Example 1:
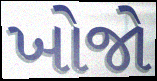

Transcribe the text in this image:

ખોજો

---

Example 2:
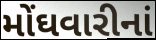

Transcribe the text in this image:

મોંઘવારીનાં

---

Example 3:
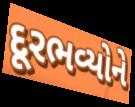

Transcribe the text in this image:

દૂરભવ્યોને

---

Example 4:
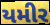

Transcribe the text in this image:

યમીર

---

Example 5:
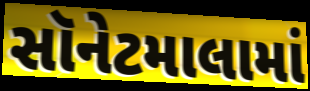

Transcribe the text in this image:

સૉનેટમાલામાં